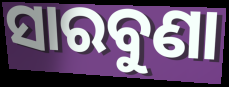
ସାରବୁଣା